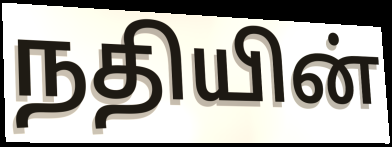
நதியின்